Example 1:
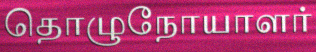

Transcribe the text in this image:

தொழுநோயாளர்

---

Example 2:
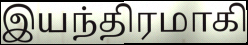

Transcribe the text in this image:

இயந்திரமாகி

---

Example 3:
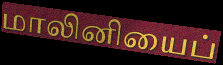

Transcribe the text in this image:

மாலினியைப்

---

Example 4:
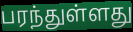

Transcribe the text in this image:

பரந்துள்ளது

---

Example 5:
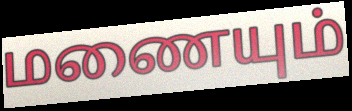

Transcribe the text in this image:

மணையும்